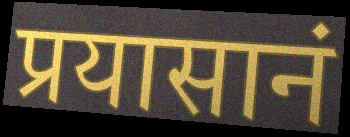
प्रयासानं